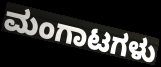
ಮಂಗಾಟಗಳು